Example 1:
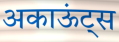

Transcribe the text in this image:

अकाऊंट्स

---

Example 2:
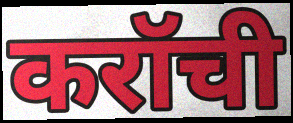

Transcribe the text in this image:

करॉची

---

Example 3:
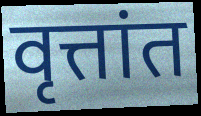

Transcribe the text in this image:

वृत्तांत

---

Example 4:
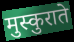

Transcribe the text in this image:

मुस्कुराते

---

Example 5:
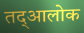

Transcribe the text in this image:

तद्आलोक